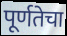
पूर्णतेचा